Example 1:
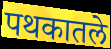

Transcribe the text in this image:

पथकातले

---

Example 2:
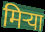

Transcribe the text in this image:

मिऱ्या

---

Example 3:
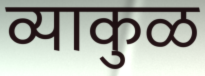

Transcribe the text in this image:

व्याकुळ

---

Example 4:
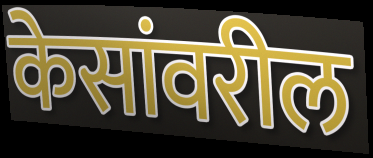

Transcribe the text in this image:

केसांवरील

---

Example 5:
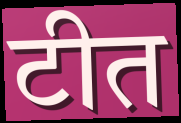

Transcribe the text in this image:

टीत